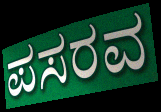
ಪಸರವ